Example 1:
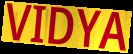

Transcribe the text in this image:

VIDYA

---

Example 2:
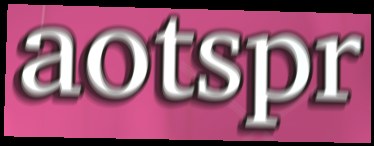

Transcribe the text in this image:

aotspr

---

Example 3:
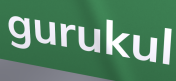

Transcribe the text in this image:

gurukul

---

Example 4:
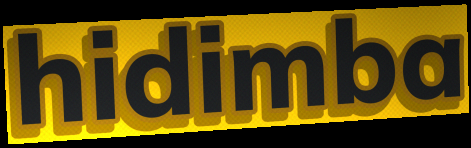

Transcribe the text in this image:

hidimba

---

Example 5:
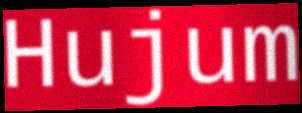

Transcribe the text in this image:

Hujum